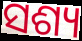
ସଶ୍ୟ